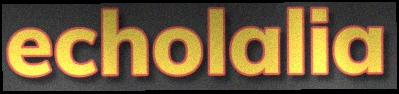
echolalia